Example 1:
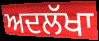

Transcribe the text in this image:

ਅਦਲੱਖਾ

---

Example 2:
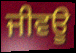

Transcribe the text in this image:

ਜੀਵਊ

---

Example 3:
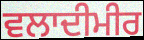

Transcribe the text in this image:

ਵਲਾਦੀਮੀਰ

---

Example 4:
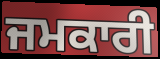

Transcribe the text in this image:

ਜਮਕਾਰੀ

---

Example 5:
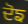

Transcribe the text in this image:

ਦੋਙ